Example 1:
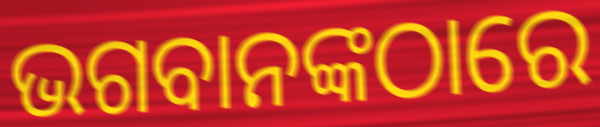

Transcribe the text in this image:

ଭଗବାନଙ୍କଠାରେ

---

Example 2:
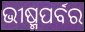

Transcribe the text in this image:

ଭୀଷ୍ମପର୍ବର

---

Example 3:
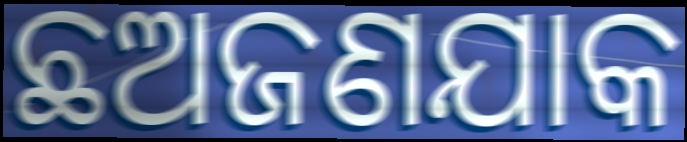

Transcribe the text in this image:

ଛଅଜଣଯାକ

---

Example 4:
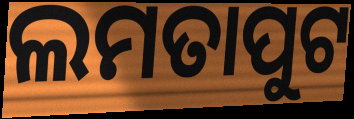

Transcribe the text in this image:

ଲମତାପୁଟ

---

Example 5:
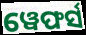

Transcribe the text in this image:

ୱେଫର୍ସ